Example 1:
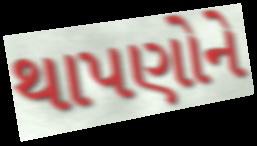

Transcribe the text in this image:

થાપણોને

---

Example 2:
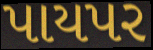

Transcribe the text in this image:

પાયપર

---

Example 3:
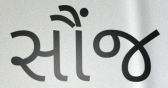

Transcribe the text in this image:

સૌંજ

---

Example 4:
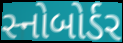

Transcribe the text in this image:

સ્નોબોર્ડર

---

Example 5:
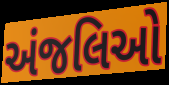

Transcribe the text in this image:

અંજલિઓ